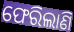
ଫେରିଲାଣି